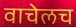
वाचेलच